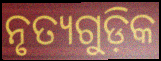
ନୃତ୍ୟଗୁଡ଼ିକ